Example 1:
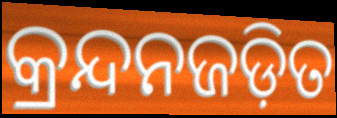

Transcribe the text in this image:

କ୍ରନ୍ଦନଜଡ଼ିତ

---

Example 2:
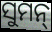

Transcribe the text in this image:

ସୁମନ୍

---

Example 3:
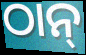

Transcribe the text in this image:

ଠାନ୍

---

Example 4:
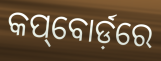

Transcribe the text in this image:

କପ୍‌ବୋର୍ଡ଼ରେ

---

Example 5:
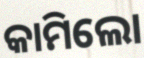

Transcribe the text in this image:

କାମିଲୋ